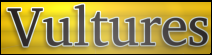
Vultures